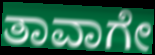
ತಾವಾಗೇ